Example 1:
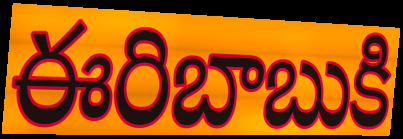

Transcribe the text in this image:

ఈరిబాబుకి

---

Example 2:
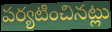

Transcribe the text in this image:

పర్యటించినట్లు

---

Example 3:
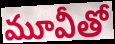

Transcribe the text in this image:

మూవీతో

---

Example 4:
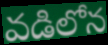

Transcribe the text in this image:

వడిలోన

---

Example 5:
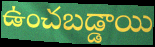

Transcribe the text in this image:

ఉంచబడ్డాయి